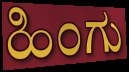
ಹಿಂಗು